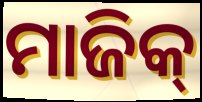
ମାଜିକ୍